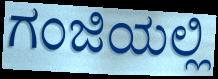
ಗಂಜಿಯಲ್ಲಿ